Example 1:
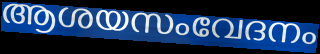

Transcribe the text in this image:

ആശയസംവേദനം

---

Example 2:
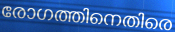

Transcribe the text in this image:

രോഗത്തിനെതിരെ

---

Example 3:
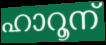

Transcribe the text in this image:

ഹാറൂന്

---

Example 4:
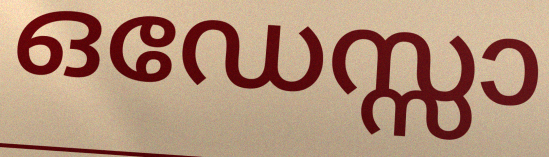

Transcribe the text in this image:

ഒഡേസ്സാ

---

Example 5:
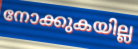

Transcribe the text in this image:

നോക്കുകയില്ല